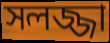
সলজ্জা